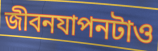
জীবনযাপনটাও